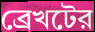
ব্রেখটের